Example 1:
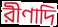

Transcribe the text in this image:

রীণাদি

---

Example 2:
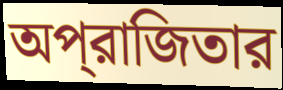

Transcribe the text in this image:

অপ্‌রাজিতার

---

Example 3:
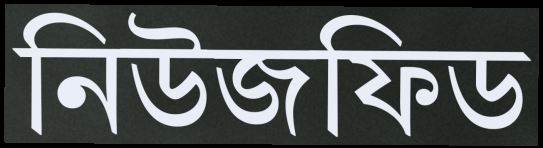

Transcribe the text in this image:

নিউজফিড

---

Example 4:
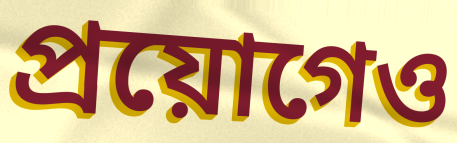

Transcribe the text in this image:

প্রয়োগেও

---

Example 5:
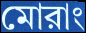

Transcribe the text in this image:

মোরাং